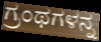
ಗ್ರಂಥಗಳನ್ನ